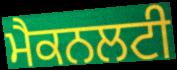
ਮੈਕਨਲਟੀ